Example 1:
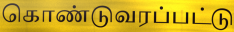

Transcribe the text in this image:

கொண்டுவரப்பட்டு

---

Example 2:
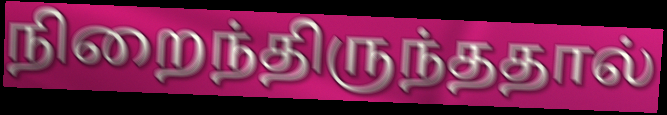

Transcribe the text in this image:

நிறைந்திருந்ததால்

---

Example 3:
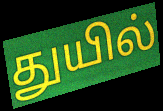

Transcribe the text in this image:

துயில்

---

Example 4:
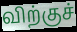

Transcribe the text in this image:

விற்குச்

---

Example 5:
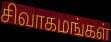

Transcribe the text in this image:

சிவாகமங்கள்